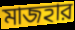
মাজহার